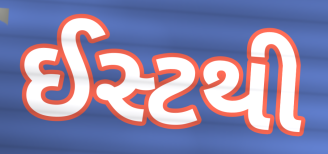
ઈસ્ટથી